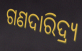
ଗଣଦାରିଦ୍ର୍ୟ